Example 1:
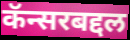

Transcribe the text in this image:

कॅन्सरबद्दल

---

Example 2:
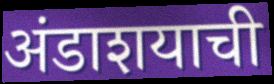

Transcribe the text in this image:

अंडाशयाची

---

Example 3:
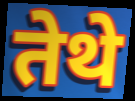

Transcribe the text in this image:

तेथे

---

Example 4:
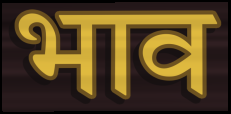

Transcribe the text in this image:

भाव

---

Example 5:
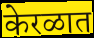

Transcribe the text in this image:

केरळात